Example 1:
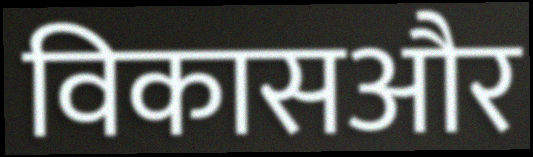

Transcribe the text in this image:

विकासऔर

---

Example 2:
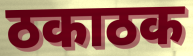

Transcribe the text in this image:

ठकाठक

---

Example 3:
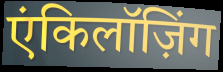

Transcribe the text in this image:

एंकिलॉज़िंग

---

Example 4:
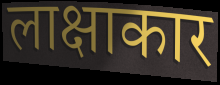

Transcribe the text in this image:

लाक्षाकार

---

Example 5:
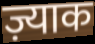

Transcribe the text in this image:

ज़्याक